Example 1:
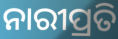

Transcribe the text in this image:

ନାରୀପ୍ରତି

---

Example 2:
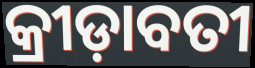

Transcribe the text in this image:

କ୍ରୀଡ଼ାବତୀ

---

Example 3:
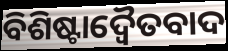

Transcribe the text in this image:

ବିଶିଷ୍ଟାଦ୍ୱୈତବାଦ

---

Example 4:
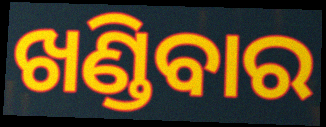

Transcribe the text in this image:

ଖଣ୍ଡିବାର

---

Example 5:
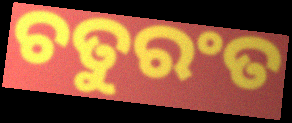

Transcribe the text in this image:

ଚତୁରଂତ